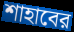
শাহাবের